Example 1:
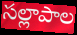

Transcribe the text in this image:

సల్లాపాల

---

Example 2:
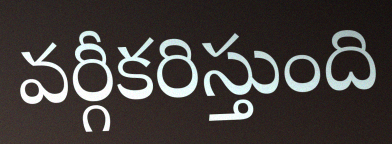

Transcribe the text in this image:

వర్గీకరిస్తుంది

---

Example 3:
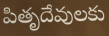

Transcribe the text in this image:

పితృదేవులకు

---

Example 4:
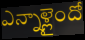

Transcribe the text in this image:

ఎన్నాళ్లైందో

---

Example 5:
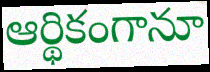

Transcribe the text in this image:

ఆర్థికంగానూ